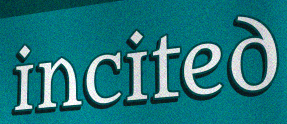
incited